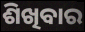
ଶିଖିବାର